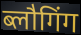
ब्लौगिंग